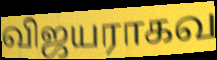
விஜயராகவ